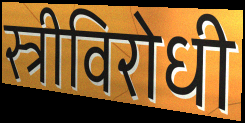
स्त्रीविरोधी